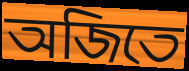
অজিতে